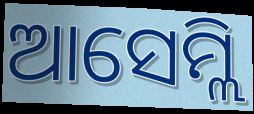
ଆସେମ୍ଲି